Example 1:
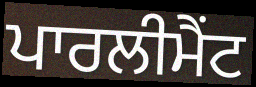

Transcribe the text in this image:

ਪਾਰਲੀਮੈਂਟ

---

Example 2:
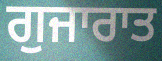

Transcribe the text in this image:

ਗੁਜਾਰਾਤ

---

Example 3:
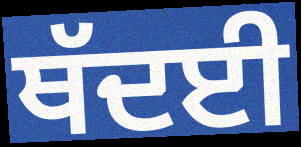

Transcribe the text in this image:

ਥੱਦਈ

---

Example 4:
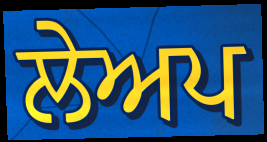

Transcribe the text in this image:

ਲੇਅਪ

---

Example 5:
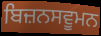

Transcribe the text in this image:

ਬਿਜ਼ਨਸਵੂਮਨ